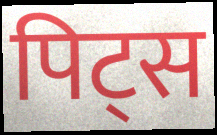
पिट्स